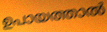
ഉപായത്താൽ